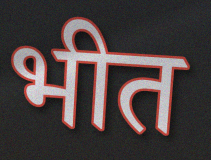
भीत